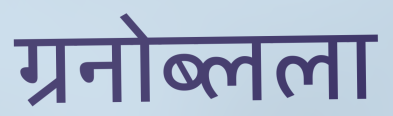
ग्रनोब्लला